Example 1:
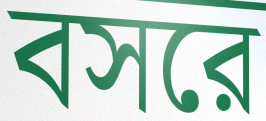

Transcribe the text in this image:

বসরে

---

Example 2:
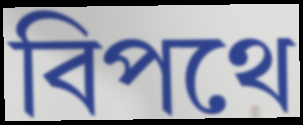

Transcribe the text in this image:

বিপথে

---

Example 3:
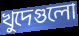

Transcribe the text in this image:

খুদেগুলো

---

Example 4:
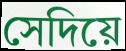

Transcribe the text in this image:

সেদিয়ে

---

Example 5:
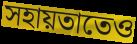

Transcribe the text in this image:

সহায়তাতেও